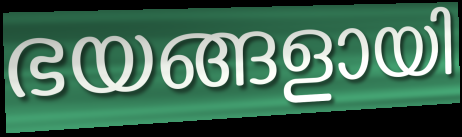
ഭയങ്ങളായി